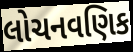
લોચનવણિક